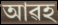
আৱহ